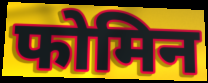
फोमिन